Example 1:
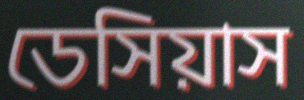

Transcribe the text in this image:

ডেসিয়াস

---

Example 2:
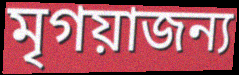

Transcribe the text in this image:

মৃগয়াজন্য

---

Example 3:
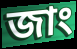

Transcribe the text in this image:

জাং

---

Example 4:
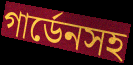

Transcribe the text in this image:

গার্ডেনসহ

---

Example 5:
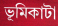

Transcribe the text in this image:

ভূমিকাটা